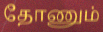
தோணும்